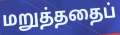
மறுத்ததைப்